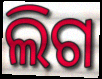
ଲିଗ